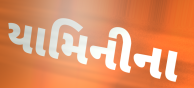
યામિનીના